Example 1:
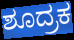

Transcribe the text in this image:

ಶೂದ್ರಕ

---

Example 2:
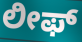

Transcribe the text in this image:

ಲೀಫ್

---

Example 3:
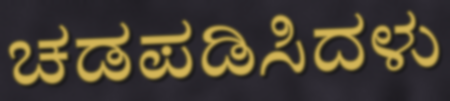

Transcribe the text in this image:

ಚಡಪಡಿಸಿದಳು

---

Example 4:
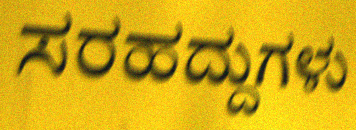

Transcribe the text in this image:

ಸರಹದ್ದುಗಳು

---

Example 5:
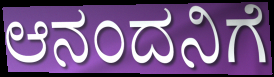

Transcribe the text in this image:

ಆನಂದನಿಗೆ